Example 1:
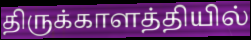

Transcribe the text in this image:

திருக்காளத்தியில்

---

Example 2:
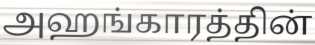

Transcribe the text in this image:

அஹங்காரத்தின்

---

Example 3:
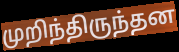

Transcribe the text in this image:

முறிந்திருந்தன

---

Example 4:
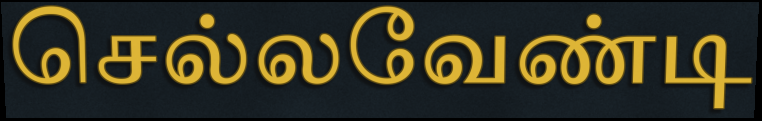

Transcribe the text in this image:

செல்லவேண்டி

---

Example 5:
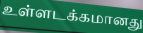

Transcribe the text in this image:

உள்ளடக்கமானது